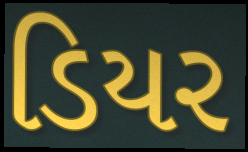
ડિયર